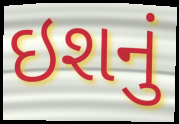
ઇશનું